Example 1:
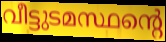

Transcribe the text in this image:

വീട്ടുടമസ്ഥന്റെ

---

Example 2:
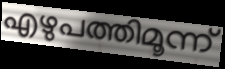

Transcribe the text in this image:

എഴുപത്തിമൂന്ന്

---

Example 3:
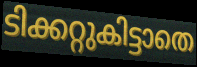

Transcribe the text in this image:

ടിക്കറ്റുകിട്ടാതെ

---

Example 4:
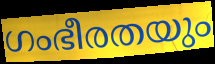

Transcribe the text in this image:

ഗംഭീരതയും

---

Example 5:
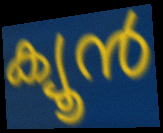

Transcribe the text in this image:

ക്യൂൻ